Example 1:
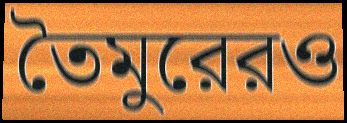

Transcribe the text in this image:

তৈমুরেরও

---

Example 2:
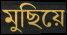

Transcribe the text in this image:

মুছিয়ে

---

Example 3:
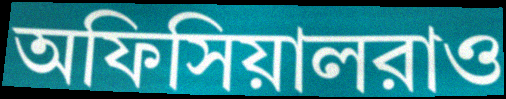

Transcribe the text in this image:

অফিসিয়ালরাও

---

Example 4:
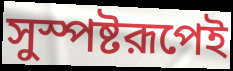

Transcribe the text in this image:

সুস্পষ্টরূপেই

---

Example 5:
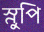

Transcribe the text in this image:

স্নুপি